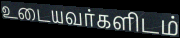
உடையவர்களிடம்